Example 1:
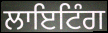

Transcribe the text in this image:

ਲਾਇਟਿੰਗ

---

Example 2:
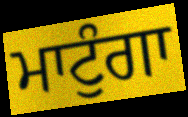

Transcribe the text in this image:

ਮਾਟੁੰਗਾ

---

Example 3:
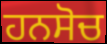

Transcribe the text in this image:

ਹਨਸੋਚ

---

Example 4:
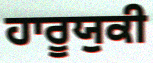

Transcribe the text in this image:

ਹਾਰੂਯੁਕੀ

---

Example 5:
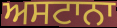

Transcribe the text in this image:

ਅਸਟਾਨਾ